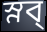
স্নব্